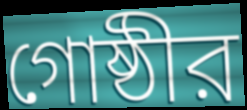
গোষ্ঠীর